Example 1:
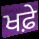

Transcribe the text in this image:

ਖਫ਼ੇ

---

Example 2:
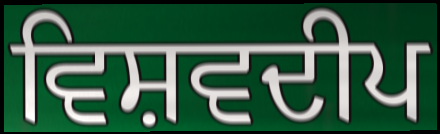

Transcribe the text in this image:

ਵਿਸ਼ਵਦੀਪ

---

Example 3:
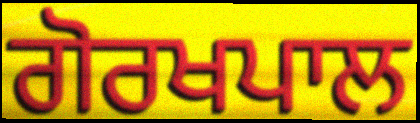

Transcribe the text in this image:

ਗੋਰਖਪਾਲ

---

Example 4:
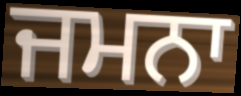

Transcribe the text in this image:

ਜਮਨਾ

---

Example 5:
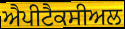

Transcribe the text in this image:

ਐਪੀਟੈਕਸੀਅਲ